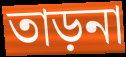
তাড়না